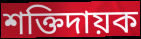
শক্তিদায়ক